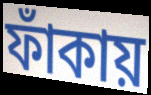
ফাঁকায়